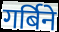
गर्बिने